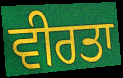
ਵੀਰਤਾ